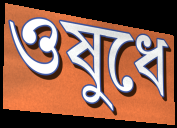
ওষুধে